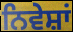
ਨਿਵੇਸ਼ਾਂ